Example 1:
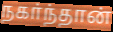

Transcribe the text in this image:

நகர்ந்தான்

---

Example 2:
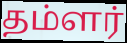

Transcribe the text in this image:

தம்ளர்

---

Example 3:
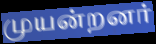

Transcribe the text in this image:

முயன்றனர்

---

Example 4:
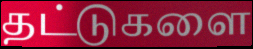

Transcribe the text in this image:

தட்டுகளை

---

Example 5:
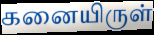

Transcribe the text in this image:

கனையிருள்